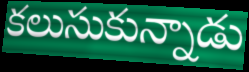
కలుసుకున్నాడు